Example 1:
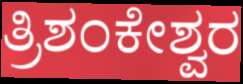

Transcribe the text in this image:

ತ್ರಿಶಂಕೇಶ್ವರ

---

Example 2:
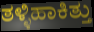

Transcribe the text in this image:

ತಳ್ಳಿಹಾಕಿತ್ತು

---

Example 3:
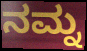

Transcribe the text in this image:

ನಮ್ನ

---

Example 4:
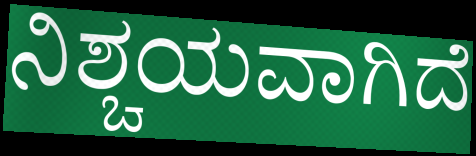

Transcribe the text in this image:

ನಿಶ್ಚಯವಾಗಿದೆ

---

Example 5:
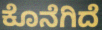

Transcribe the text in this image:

ಕೊನೆಗಿದೆ